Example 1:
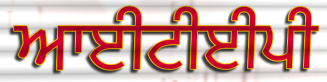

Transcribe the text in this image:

ਆਈਟੀਈਪੀ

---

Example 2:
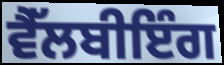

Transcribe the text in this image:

ਵੈੱਲਬੀਇੰਗ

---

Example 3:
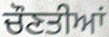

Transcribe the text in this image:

ਚੌਣਤੀਆਂ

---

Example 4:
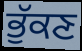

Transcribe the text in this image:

ਭੁੱਕਣ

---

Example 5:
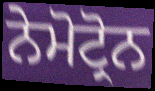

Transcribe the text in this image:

ਨੇਮੋਟ੍ਰੋਨ